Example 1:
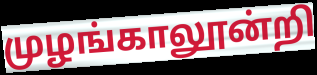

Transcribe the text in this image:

முழங்காலூன்றி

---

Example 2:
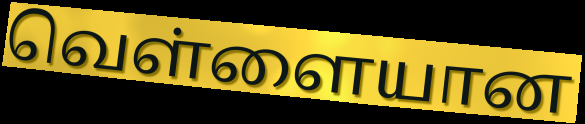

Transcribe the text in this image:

வெள்ளையான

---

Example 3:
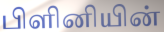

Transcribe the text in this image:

பிளினியின்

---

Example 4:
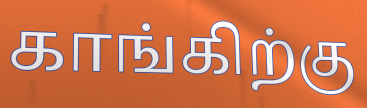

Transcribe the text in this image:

காங்கிற்கு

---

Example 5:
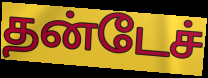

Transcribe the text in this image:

தன்டேச்